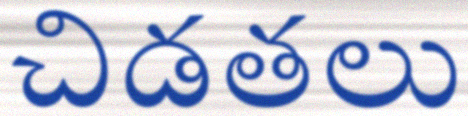
చిడతలు